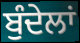
ਬੁੰਦੇਲਾਂ